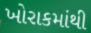
ખોરાકમાંથી